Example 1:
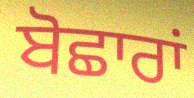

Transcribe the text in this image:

ਬੋਛਾਰਾਂ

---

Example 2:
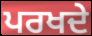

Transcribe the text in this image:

ਪਰਖਦੇ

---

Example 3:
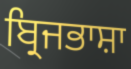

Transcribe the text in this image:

ਬ੍ਰਿਜਭਾਸ਼ਾ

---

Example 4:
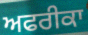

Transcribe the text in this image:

ਅਫਰੀਕਾ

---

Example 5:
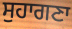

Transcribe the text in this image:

ਸੁਹਾਗਣਾ